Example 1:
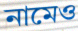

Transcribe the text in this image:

নামেও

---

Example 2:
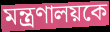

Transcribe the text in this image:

মন্ত্রণালয়কে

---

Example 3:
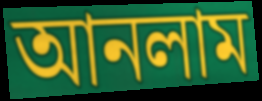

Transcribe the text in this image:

আনলাম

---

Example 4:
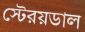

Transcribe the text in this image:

স্টেরয়ডাল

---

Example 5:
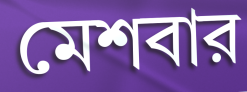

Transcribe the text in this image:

মেশবার